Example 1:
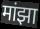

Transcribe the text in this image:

मांझा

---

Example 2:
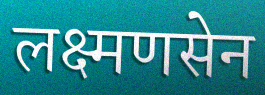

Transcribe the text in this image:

लक्ष्मणसेन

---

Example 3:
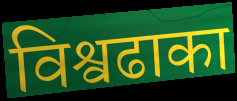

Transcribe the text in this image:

विश्वढाका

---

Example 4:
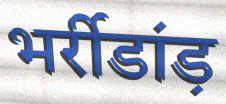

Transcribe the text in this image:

भर्रीडांड़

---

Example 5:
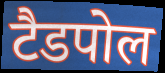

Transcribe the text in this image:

टैडपोल